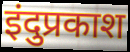
इंदुप्रकाश